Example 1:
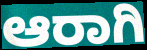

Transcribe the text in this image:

ಆರಾಗಿ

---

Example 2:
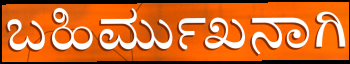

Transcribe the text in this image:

ಬಹಿರ್ಮುಖನಾಗಿ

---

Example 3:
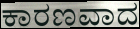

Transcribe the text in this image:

ಕಾರಣವಾದ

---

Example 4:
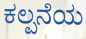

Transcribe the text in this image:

ಕಲ್ಪನೆಯ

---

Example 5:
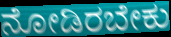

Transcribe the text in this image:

ನೋಡಿರಬೇಕು